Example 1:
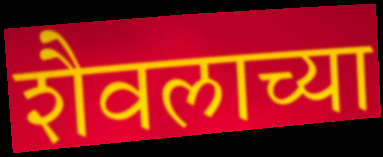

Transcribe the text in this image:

शैवलाच्या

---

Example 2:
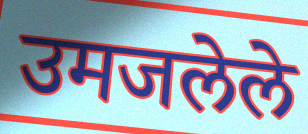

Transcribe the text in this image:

उमजलेले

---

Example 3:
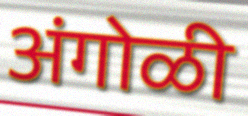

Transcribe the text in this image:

अंगोळी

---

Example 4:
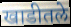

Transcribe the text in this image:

खाडीतले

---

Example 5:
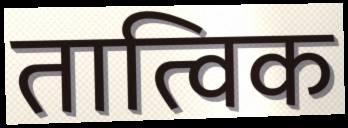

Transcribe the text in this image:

तात्विक